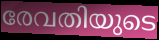
രേവതിയുടെ